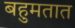
बहुमतात